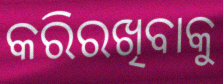
କରିରଖିବାକୁ